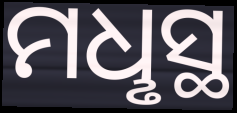
ମଧୢସ୍ଥ